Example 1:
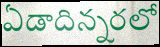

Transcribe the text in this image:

ఏడాదిన్నరలో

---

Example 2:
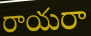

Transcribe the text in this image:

రాయరా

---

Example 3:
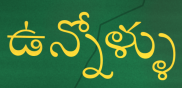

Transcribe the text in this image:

ఉన్నోళ్ళు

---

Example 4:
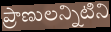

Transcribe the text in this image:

ప్రాణులన్నిటిని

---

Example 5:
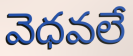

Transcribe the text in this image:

వెధవలే